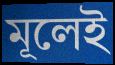
মূলেই